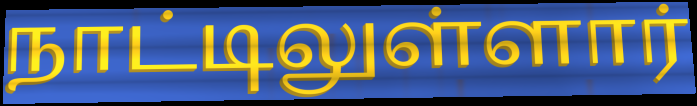
நாட்டிலுள்ளார்